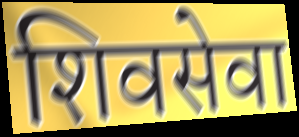
शिवसेवा